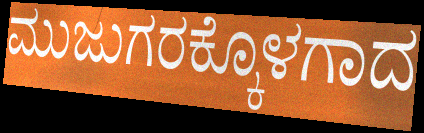
ಮುಜುಗರಕ್ಕೊಳಗಾದ